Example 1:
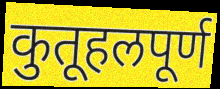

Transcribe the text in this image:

कुतूहलपूर्ण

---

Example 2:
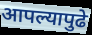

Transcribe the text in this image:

आपल्यापुढे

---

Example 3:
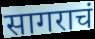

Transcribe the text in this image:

सागराचं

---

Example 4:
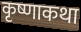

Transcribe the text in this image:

कृष्णाकथा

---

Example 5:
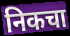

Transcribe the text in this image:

निकचा